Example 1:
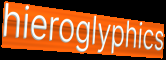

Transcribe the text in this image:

hieroglyphics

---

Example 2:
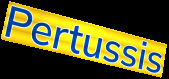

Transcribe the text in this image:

Pertussis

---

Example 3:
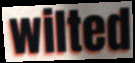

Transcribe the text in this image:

wilted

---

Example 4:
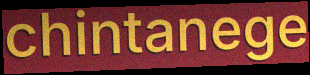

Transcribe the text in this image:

chintanege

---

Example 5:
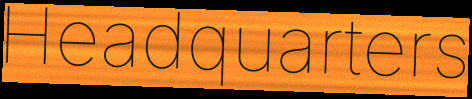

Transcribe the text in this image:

Headquarters